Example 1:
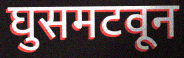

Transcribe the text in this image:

घुसमटवून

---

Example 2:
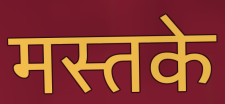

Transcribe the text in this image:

मस्तके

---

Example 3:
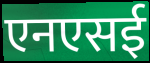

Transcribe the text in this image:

एनएसई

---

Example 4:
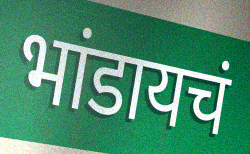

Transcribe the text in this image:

भांडायचं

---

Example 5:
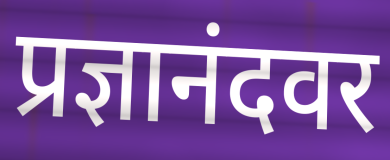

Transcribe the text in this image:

प्रज्ञानंदवर